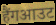
हैंगआउट